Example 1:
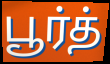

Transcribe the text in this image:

பூர்த்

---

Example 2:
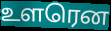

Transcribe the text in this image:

உளரென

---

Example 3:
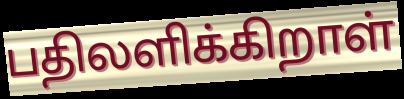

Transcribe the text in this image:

பதிலளிக்கிறாள்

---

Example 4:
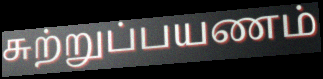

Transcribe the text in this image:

சுற்றுப்பயணம்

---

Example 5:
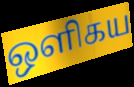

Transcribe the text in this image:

ஒளிகய